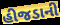
હીજડાની